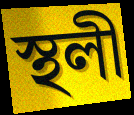
স্থলী